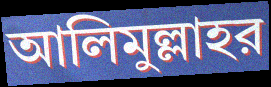
আলিমুল্লাহর